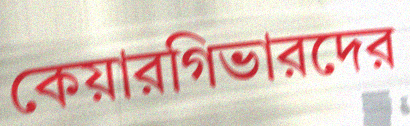
কেয়ারগিভারদের